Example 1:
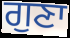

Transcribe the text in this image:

ਗੁਣਾ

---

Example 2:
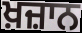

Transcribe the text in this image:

ਖ਼ਜ਼ਾਨ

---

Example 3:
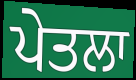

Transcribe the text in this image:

ਪੇਤਲਾ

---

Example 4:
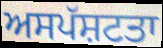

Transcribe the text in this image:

ਅਸਪੱਸ਼ਟਤਾ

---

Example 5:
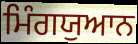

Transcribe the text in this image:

ਮਿੰਗਯੁਆਨ